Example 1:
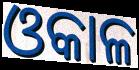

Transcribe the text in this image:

ଓକାଳ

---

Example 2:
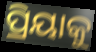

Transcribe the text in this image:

ପ୍ରିୟାକୁ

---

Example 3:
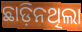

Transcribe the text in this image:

ଛାଡ଼ିନଥିଲା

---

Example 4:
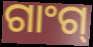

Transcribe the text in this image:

ଗାଂଗ୍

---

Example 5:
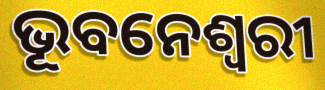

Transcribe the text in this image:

ଭୂବନେଶ୍ୱରୀ